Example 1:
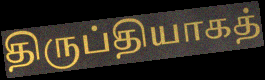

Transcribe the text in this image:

திருப்தியாகத்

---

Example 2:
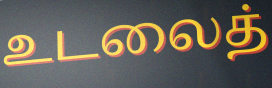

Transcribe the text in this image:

உடலைத்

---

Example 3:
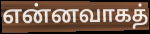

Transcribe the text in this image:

என்னவாகத்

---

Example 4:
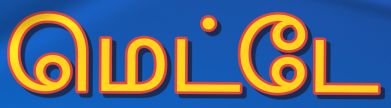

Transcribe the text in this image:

மெட்டே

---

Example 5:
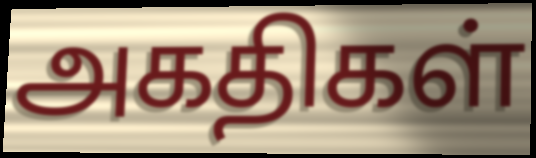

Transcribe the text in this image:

அகதிகள்